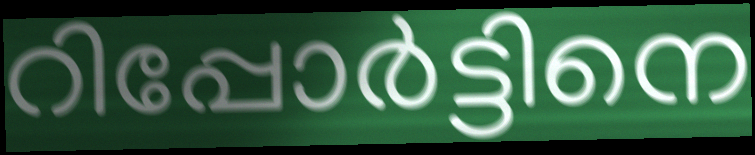
റിപ്പോർട്ടിനെ